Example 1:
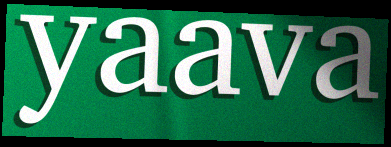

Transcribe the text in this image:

yaava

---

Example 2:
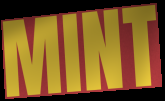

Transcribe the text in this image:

MINT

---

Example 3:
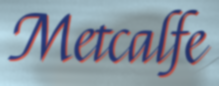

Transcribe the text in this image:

Metcalfe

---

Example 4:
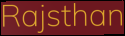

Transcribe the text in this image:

Rajsthan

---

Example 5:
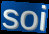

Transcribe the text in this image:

soi